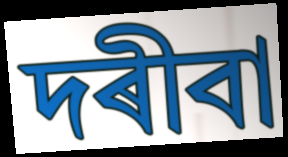
দৰীবা